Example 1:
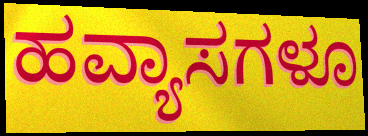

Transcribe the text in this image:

ಹವ್ಯಾಸಗಳೂ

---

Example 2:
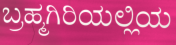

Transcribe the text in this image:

ಬ್ರಹ್ಮಗಿರಿಯಲ್ಲಿಯ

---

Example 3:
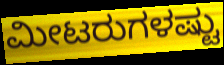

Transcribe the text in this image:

ಮೀಟರುಗಳಷ್ಟು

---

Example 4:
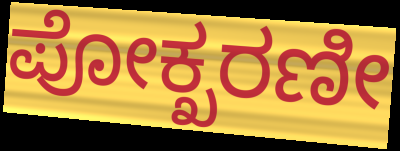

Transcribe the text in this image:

ಪೋಕ್ಖರಣೀ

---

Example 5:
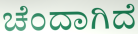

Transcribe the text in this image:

ಚೆಂದಾಗಿದೆ